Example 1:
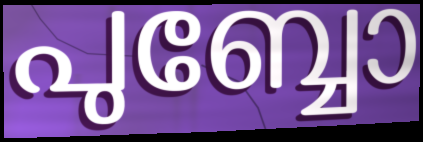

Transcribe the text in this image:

പുബ്ബോ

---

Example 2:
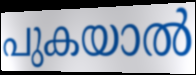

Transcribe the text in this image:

പുകയാൽ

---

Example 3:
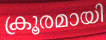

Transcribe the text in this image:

ക്രൂരമായി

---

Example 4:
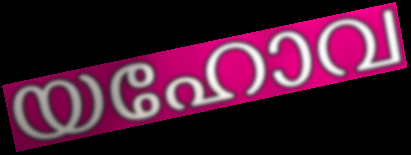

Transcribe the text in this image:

യഹോവ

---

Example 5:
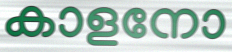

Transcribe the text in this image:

കാളനോ